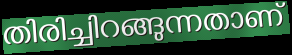
തിരിച്ചിറങ്ങുന്നതാണ്